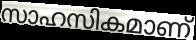
സാഹസികമാണ്